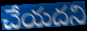
చేయదని